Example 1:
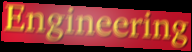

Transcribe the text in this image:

Engineering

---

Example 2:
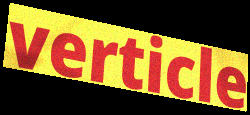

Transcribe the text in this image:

verticle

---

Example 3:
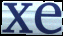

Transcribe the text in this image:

xe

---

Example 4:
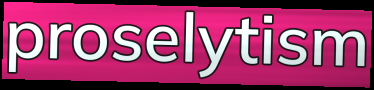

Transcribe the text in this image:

proselytism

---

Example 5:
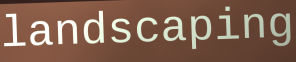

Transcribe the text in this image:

landscaping